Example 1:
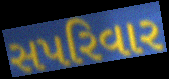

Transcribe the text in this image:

સપરિવાર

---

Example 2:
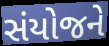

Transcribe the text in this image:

સંયોજને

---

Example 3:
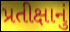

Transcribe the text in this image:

પ્રતીક્ષાનું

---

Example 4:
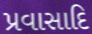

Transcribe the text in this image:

પ્રવાસાદિ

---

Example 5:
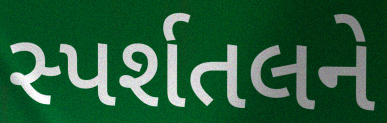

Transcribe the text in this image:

સ્પર્શતલને